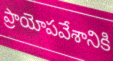
ప్రాయోపవేశానికి